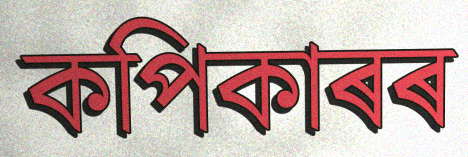
কপিকাৰৰ